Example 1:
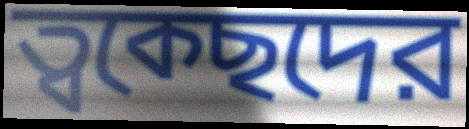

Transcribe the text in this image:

ত্বক্ছেদের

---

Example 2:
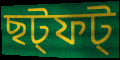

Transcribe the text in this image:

ছট্‌ফট্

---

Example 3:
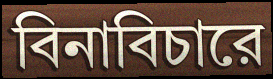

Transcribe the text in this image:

বিনাবিচারে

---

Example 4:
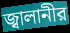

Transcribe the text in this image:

জ্বালানীর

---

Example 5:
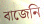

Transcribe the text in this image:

বাজেনি